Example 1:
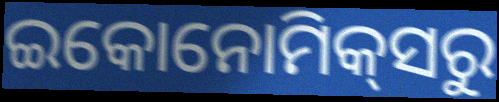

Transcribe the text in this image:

ଇକୋନୋମିକ୍‌ସରୁ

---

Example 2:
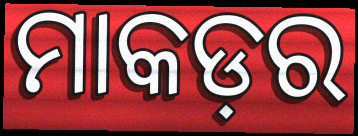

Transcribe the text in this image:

ମାକଡ଼ର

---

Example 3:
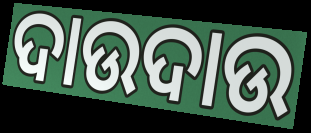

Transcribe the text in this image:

ଦାଉଦାଉ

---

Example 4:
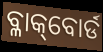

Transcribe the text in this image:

ବ୍ଳାକ୍‌ବୋର୍ଡ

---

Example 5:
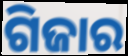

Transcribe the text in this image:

ଗିଜାର